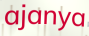
ajanya